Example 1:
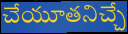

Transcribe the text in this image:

చేయూతనిచ్చే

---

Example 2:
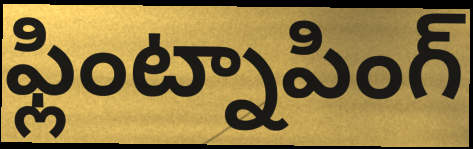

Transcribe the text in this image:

ఫ్లింట్నాపింగ్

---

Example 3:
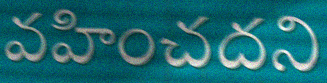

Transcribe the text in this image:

వహించదని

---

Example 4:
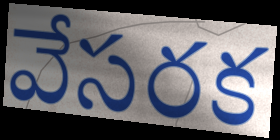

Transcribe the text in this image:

వేసరక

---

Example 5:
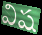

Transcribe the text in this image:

విష